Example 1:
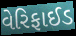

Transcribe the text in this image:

વેરિફાઈડ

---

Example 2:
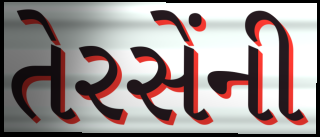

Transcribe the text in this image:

તેરસેંની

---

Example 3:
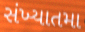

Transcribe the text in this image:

સંખ્યાતમા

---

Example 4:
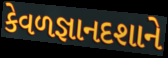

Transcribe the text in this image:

કેવળજ્ઞાનદશાને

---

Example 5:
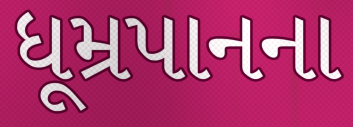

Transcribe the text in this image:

ધૂમ્રપાનના